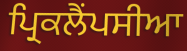
ਪ੍ਰਿਕਲੈਂਪਸੀਆ